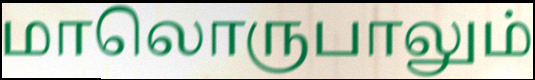
மாலொருபாலும்